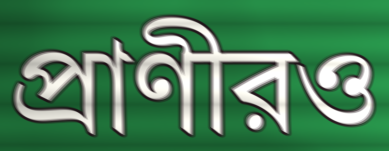
প্রাণীরও